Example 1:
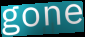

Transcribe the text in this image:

gone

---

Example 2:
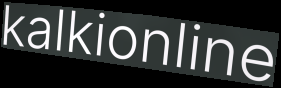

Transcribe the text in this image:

kalkionline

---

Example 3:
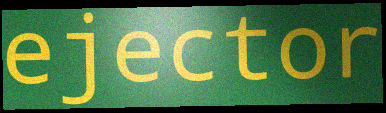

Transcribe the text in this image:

ejector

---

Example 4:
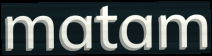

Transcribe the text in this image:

matam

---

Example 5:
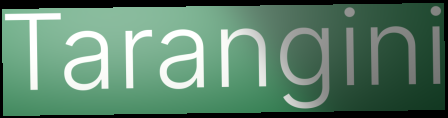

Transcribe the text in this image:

Tarangini